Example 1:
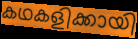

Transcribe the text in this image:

കഥകളിക്കായി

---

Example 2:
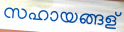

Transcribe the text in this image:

സഹായങ്ങള്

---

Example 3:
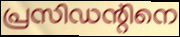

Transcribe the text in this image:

പ്രസിഡന്റിനെ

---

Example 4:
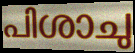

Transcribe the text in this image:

പിശാചു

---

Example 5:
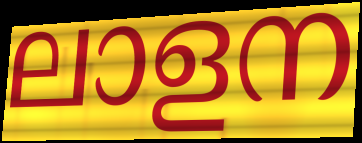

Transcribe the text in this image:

ലാളന